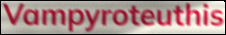
Vampyroteuthis